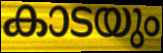
കാടയും